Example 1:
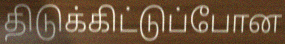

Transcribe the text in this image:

திடுக்கிட்டுப்போன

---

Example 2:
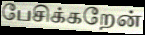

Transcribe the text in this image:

பேசிக்கறேன்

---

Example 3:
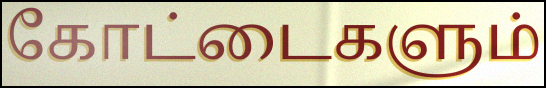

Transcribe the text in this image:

கோட்டைகளும்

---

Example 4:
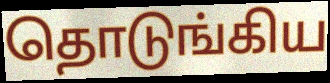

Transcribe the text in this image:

தொடுங்கிய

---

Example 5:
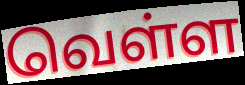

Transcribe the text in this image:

வெள்ள